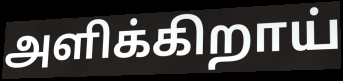
அளிக்கிறாய்